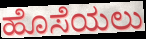
ಹೊಸೆಯಲು